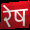
रेष